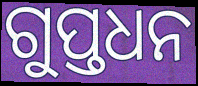
ଗୁପ୍ତଧନ